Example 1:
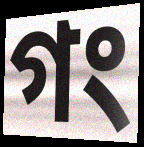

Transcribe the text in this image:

গং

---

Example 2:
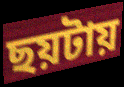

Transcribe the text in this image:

ছয়টায়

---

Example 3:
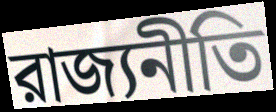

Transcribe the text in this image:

রাজ্যনীতি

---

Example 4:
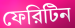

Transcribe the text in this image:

ফেরিটিন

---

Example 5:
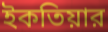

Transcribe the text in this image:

ইকতিয়ার